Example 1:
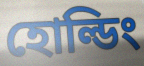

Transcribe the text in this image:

হোল্ডিং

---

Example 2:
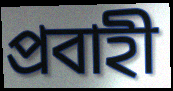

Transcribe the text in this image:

প্রবাহী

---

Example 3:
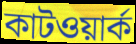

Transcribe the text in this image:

কাটওয়ার্ক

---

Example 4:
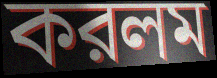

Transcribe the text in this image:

করলম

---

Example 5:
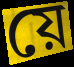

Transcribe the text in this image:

য়ে